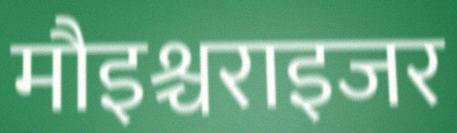
मौइश्चराइजर